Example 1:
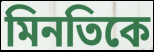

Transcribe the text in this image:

মিনতিকে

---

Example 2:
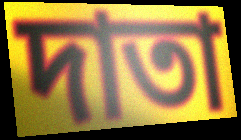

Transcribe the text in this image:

দাতা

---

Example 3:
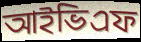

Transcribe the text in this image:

আইভিএফ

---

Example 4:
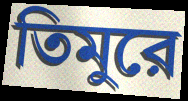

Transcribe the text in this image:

তিমুরে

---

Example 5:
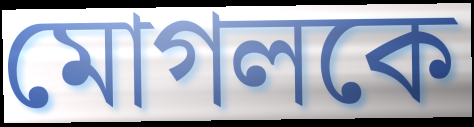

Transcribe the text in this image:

মোগলকে